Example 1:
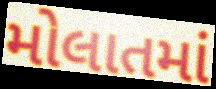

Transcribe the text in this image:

મોલાતમાં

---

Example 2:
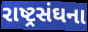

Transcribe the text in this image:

રાષ્ટ્રસંઘના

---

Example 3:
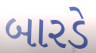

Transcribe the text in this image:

બારડે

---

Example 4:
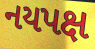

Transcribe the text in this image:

નયપક્ષ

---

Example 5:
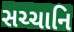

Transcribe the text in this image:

સચ્ચાનિ